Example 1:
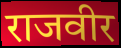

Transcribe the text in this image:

राजवीर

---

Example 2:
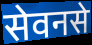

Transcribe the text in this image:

सेवनसे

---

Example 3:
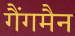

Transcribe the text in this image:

गैंगमैन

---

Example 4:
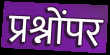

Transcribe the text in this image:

प्रश्नोंपर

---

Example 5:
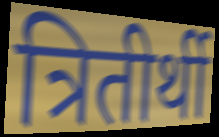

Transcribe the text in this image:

त्रितीर्थी